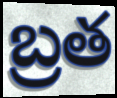
బ్రత